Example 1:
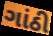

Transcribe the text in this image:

ગાંઠી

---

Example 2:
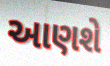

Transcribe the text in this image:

આણશે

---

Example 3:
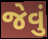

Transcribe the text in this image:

જેવું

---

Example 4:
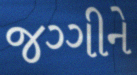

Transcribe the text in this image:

જગ્ગીને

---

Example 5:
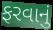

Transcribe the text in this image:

ફરવાનું